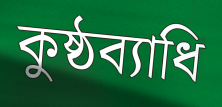
কুষ্ঠব্যাধি